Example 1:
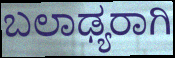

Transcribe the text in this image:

ಬಲಾಢ್ಯರಾಗಿ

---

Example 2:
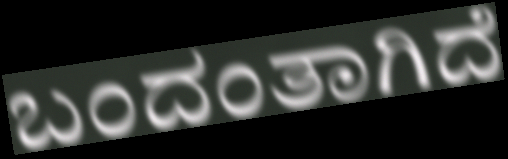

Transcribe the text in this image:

ಬಂದಂತಾಗಿದೆ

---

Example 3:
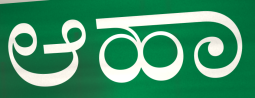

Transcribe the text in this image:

ಆಹಾ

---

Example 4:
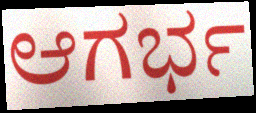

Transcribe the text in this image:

ಆಗರ್ಭ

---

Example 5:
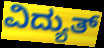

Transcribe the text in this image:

ವಿದ್ಯುತ್